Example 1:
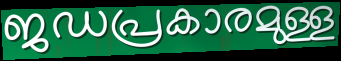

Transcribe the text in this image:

ജഡപ്രകാരമുള്ള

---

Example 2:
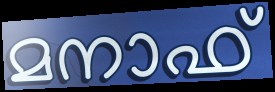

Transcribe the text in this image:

മനാഫ്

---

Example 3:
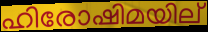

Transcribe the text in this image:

ഹിരോഷിമയില്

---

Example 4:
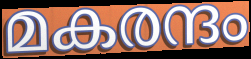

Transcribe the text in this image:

മകരന്ദം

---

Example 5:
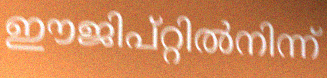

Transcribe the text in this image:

ഈജിപ്റ്റിൽനിന്ന്